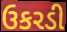
ઉકરડી